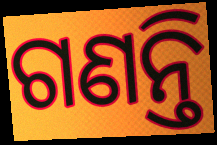
ଗଣନ୍ତି